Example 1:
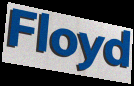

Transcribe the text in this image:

Floyd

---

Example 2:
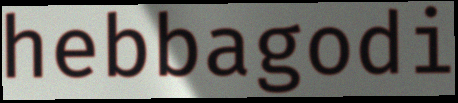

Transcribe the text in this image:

hebbagodi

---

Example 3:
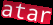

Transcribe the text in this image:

atar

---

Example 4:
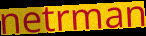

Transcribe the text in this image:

netrman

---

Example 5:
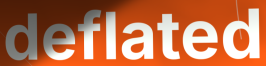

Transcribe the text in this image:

deflated